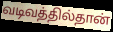
வடிவத்தில்தான்